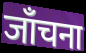
जाँचना